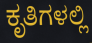
ಕೃತಿಗಳಲ್ಲಿ